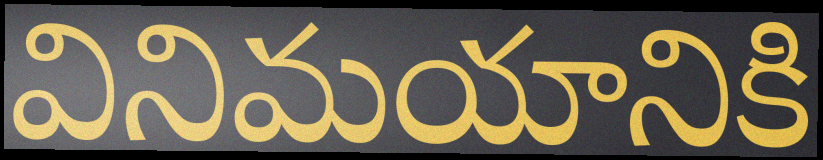
వినిమయానికి